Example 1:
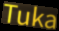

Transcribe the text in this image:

Tuka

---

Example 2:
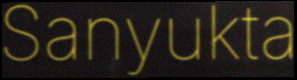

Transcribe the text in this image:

Sanyukta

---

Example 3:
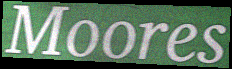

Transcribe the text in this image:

Moores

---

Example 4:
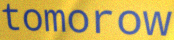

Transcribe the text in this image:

tomorow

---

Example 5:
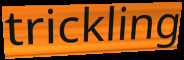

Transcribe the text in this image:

trickling